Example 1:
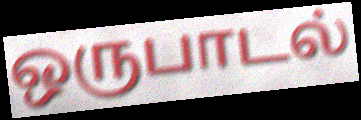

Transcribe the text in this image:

ஒருபாடல்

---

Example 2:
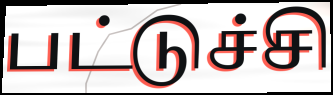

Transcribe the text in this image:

பட்டுச்சி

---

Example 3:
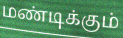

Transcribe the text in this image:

மண்டிக்கும்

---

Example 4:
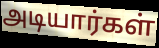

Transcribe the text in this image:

அடியார்கள்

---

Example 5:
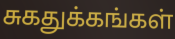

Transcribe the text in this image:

சுகதுக்கங்கள்